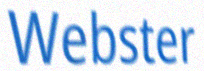
Webster